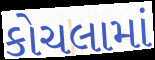
કોચલામાં